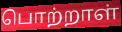
பொற்றாள்